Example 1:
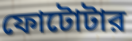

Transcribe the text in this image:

ফোটোটার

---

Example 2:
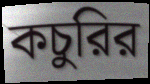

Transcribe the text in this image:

কচুরির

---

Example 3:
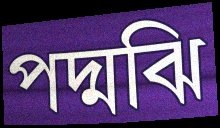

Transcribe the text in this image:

পদ্মঝি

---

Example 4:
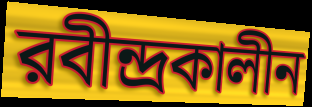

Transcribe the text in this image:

রবীন্দ্রকালীন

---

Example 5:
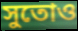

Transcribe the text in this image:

সুতোও